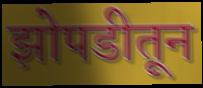
झोपडीतून